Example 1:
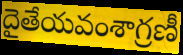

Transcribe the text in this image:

దైతేయవంశాగ్రణీ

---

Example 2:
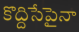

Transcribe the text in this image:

కొద్దిసేపైనా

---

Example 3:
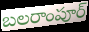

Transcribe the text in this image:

బలరాంపూర్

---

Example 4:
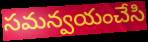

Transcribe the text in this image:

సమన్వయంచేసి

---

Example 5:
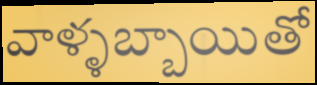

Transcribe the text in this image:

వాళ్ళబ్బాయితో